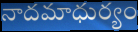
నాదమాధుర్యం